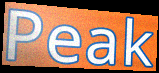
Peak